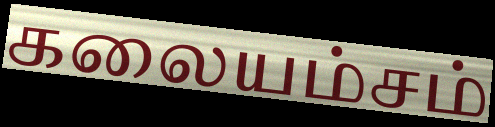
கலையம்சம்